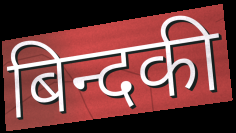
बिन्दकी